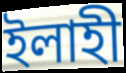
ইলাহী